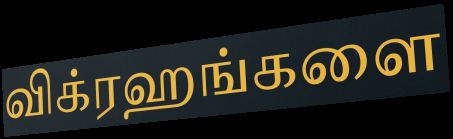
விக்ரஹங்களை